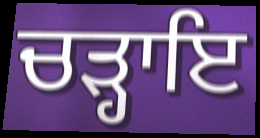
ਚੜ੍ਹਾਇ